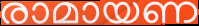
രാമായണ